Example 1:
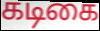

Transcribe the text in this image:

கடிகை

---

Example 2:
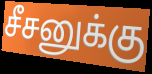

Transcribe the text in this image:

சீசனுக்கு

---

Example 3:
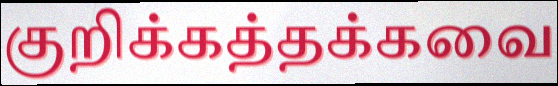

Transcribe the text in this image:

குறிக்கத்தக்கவை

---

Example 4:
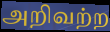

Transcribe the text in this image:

அறிவற்ற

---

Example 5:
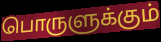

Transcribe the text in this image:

பொருளுக்கும்